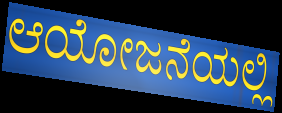
ಆಯೋಜನೆಯಲ್ಲಿ